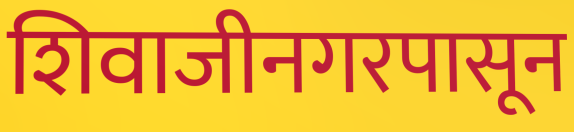
शिवाजीनगरपासून